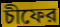
চীফের